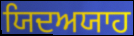
ਯਿਦਅਯਾਹ